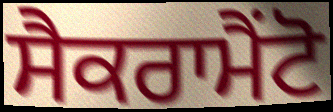
ਸੈਕਰਾਮੈਂਟੋ